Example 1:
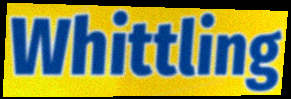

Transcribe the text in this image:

Whittling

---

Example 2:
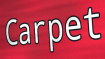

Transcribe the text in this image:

Carpet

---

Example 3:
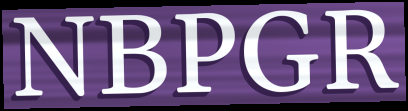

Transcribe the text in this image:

NBPGR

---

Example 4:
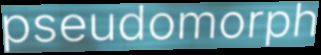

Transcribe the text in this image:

pseudomorph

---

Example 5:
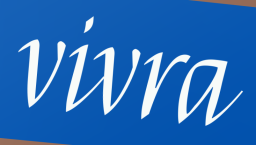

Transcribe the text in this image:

vivra